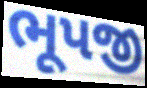
ભૂપજી